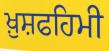
ਖ਼ੁਸ਼ਫਹਿਮੀ